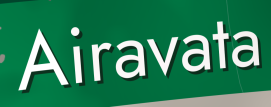
Airavata